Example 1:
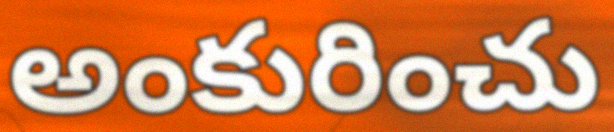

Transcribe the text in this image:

అంకురించు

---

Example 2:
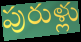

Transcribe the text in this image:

పురుళ్లు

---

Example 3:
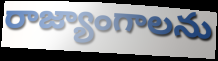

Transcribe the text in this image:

రాజ్యాంగాలను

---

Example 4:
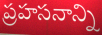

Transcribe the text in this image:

ప్రహసనాన్ని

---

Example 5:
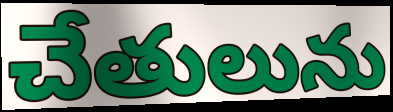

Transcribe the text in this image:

చేతులును